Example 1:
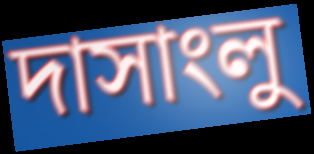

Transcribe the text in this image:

দাসাংলু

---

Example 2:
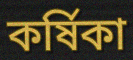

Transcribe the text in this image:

কর্ষিকা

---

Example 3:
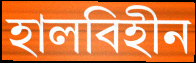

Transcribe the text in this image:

হালবিহীন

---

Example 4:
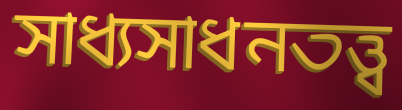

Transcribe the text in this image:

সাধ্যসাধনতত্ত্ব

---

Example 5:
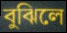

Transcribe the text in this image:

বুঝিলে